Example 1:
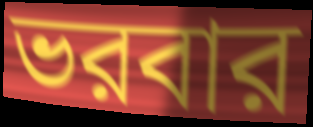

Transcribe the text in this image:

ভরবার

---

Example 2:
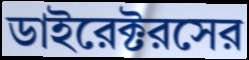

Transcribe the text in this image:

ডাইরেক্টরসের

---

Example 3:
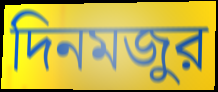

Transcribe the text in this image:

দিনমজুর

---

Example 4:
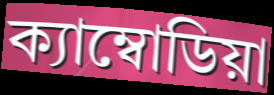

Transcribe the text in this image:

ক্যাম্বোডিয়া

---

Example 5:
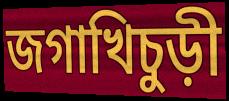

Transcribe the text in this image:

জগাখিচুড়ী